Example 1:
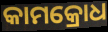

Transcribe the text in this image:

କାମକ୍ରୋଧ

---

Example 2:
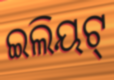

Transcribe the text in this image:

ଇଲିୟଟ୍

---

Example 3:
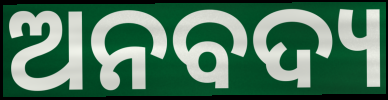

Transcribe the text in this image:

ଅନବଦ୍ୟ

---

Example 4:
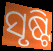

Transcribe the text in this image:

ସୃଷ୍ଟି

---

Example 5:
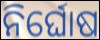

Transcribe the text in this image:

ନିର୍ଘୋଷ